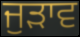
ਜੁੜਾਵ